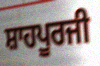
ਸ਼ਾਹਪੂਰਜੀ